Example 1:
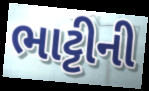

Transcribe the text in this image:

ભાટ્ટીની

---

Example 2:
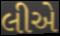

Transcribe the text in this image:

લીએ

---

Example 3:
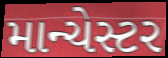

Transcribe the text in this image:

માન્ચેસ્ટર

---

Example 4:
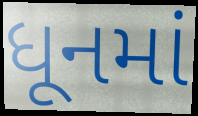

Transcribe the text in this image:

ધૂનમાં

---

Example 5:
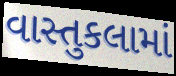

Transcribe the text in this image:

વાસ્તુકલામાં